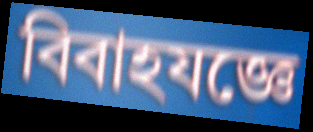
বিবাহযজ্ঞে